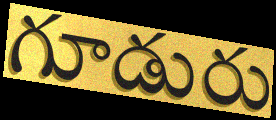
గూడురు